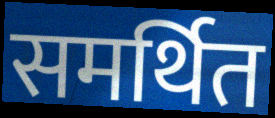
समर्थित